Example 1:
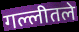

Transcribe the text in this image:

गल्लीतले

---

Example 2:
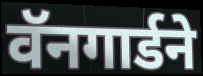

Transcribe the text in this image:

वॅनगार्डने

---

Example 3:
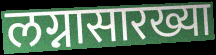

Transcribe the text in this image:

लग्नासारख्या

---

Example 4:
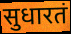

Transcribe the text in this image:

सुधारतं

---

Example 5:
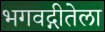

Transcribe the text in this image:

भगवद्गीतेला